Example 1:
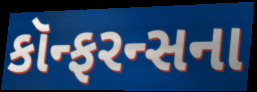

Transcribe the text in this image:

કૉન્ફરન્સના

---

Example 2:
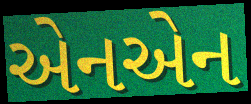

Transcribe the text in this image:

એનએન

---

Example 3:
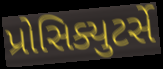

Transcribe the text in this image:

પ્રોસિક્યુટર્સે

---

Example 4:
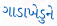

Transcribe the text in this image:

ગાડાખેડુને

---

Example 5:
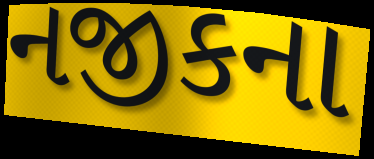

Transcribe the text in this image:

નજીકના